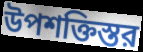
উপশক্তিস্তর